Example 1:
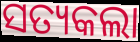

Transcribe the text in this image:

ସତ୍ୟକଲା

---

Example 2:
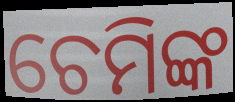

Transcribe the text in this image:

ଚେମିଙ୍କ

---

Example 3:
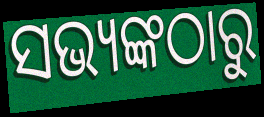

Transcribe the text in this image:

ସଭ୍ୟଙ୍କଠାରୁ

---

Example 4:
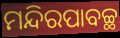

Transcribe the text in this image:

ମନ୍ଦିରପାବଚ୍ଛ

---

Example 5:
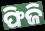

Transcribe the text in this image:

ଫିଜି